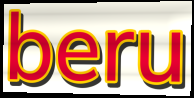
beru